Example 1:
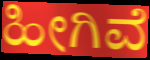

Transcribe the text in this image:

ಹೀಗಿವೆ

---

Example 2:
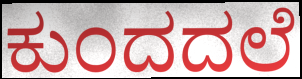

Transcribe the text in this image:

ಕುಂದದಲೆ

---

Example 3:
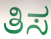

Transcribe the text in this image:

ತಿಸ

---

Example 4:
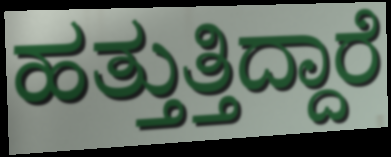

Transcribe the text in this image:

ಹತ್ತುತ್ತಿದ್ದಾರೆ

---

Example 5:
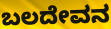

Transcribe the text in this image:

ಬಲದೇವನ